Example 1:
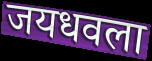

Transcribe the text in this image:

जयधवला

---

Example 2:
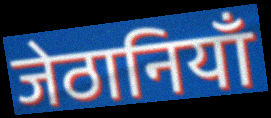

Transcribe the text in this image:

जेठानियाँ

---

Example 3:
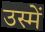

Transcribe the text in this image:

उस्में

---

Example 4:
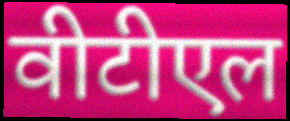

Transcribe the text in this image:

वीटीएल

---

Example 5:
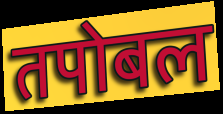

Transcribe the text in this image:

तपोबल